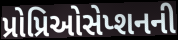
પ્રોપ્રિઓસેપ્શનની